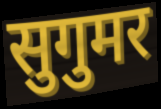
सुगुमर